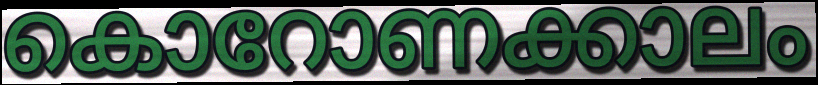
കൊറോണക്കാലം